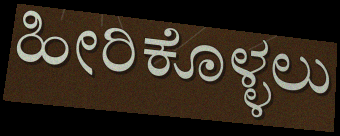
ಹೀರಿಕೊಳ್ಳಲು